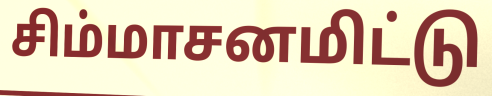
சிம்மாசனமிட்டு